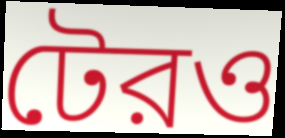
টেরও